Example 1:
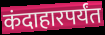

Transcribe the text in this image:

कंदाहारपर्यंत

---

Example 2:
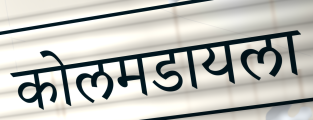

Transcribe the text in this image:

कोलमडायला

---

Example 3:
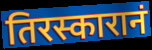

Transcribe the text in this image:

तिरस्कारानं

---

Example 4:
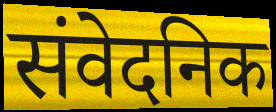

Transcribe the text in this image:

संवेदनिक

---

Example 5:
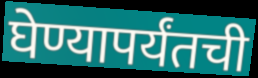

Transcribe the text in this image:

घेण्यापर्यंतची